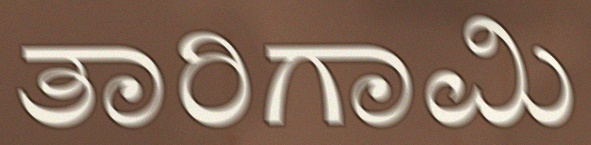
ತಾರಿಗಾಮಿ